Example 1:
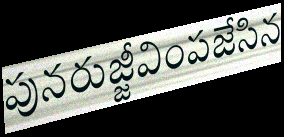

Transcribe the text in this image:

పునరుజ్జీవింపజేసిన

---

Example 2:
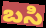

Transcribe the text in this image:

బసి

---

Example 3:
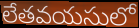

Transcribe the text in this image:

లేతవయసులో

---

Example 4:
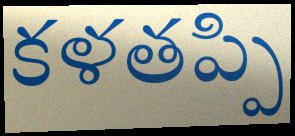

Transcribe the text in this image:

కళతప్పి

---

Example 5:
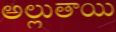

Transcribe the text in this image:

అల్లుతాయి